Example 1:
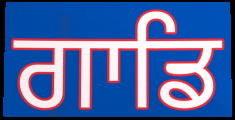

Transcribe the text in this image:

ਗਾਡਿ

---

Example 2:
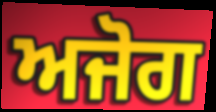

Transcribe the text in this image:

ਅਜੋਗ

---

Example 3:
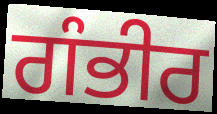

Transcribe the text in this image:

ਗੰਭੀਰ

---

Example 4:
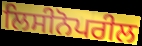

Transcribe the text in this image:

ਲਿਸੀਨੋਪਰੀਲ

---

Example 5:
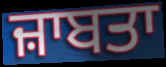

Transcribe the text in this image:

ਜ਼ਾਬਤਾ